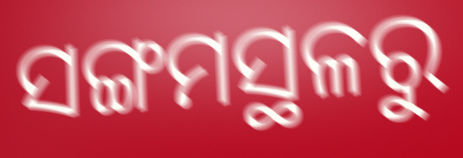
ସଙ୍ଗମସ୍ଥଳରୁ